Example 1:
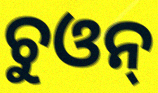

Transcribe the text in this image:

ଚୁଓନ୍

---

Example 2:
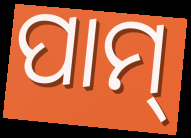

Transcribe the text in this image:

ପାମ୍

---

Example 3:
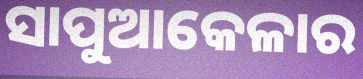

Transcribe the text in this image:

ସାପୁଆକେଳାର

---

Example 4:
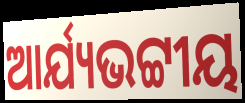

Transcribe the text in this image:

ଆର୍ଯ୍ୟଭଟ୍ଟୀୟ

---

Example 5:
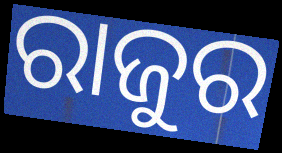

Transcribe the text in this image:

ରାଜୁର